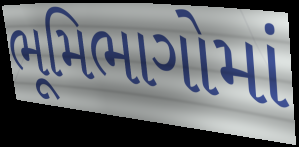
ભૂમિભાગોમાં